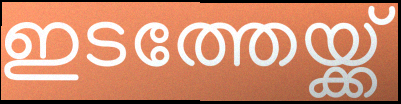
ഇടത്തേയ്ക്ക്